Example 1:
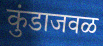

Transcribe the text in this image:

कुंडाजवळ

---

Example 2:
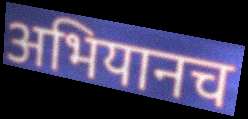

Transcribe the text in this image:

अभियानच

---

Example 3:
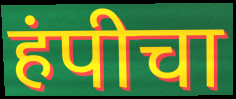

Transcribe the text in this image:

हंपीचा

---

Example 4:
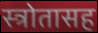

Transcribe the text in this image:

स्त्रोतासह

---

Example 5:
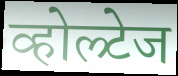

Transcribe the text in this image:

व्होल्टेज